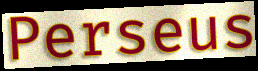
Perseus